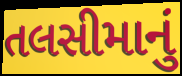
તલસીમાનું